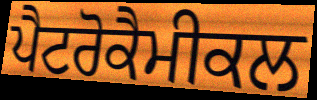
ਪੈਟਰੋਕੈਮੀਕਲ